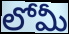
లోమీ